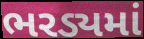
ભરડ્યમાં